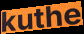
kuthe